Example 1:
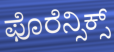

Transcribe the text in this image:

ಫೊರೆನ್ಸಿಕ್ಸ್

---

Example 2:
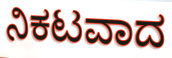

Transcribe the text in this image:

ನಿಕಟವಾದ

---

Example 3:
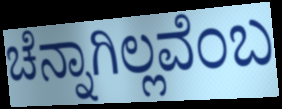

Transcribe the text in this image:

ಚೆನ್ನಾಗಿಲ್ಲವೆಂಬ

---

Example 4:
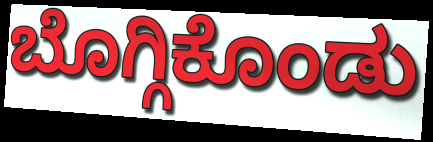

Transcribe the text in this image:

ಬೊಗ್ಗಿಕೊಂಡು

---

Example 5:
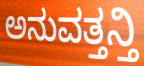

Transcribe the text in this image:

ಅನುವತ್ತನ್ತಿ